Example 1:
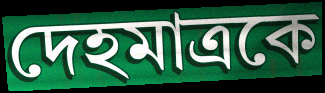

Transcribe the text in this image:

দেহমাত্রকে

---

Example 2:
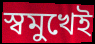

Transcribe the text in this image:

স্বমুখেই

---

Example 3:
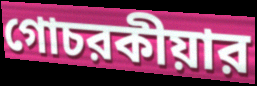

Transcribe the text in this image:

গোচরকীয়ার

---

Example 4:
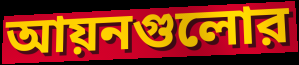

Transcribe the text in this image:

আয়নগুলোর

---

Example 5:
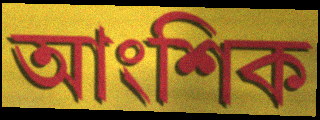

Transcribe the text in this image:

আংশিক